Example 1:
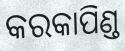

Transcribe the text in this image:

କରକାପିଣ୍ଡ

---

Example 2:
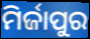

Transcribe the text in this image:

ମିର୍ଜାପୁର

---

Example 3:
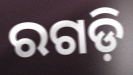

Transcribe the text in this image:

ରଗଡ଼ି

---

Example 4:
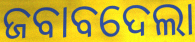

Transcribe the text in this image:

ଜବାବଦେଲା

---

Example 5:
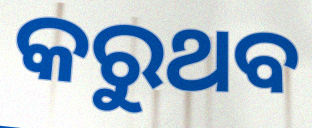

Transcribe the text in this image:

କରୁଥବ